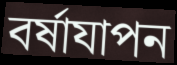
বর্ষাযাপন